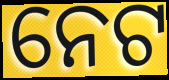
ନେଟ